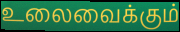
உலைவைக்கும்